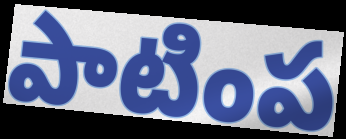
పాటింప